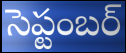
సెప్టంబర్